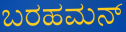
ಬರಹಮನ್